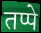
तप्पे